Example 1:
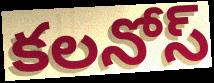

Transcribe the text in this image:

కలనోస్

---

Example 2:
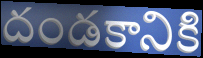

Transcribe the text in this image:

దండకానికి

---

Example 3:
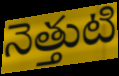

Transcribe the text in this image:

నెత్తుటి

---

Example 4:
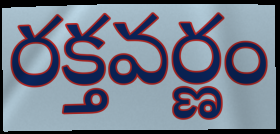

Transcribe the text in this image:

రక్తవర్ణం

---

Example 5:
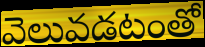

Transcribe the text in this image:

వెలువడటంతో